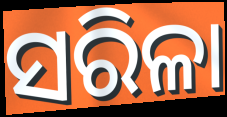
ସରିଳା